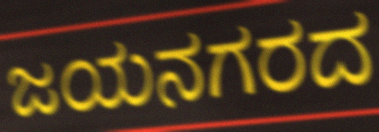
ಜಯನಗರದ